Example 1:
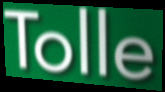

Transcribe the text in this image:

Tolle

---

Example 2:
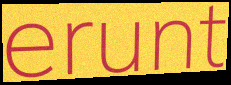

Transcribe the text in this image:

erunt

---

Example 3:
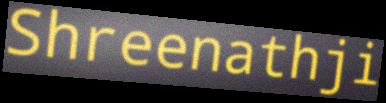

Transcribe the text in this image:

Shreenathji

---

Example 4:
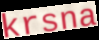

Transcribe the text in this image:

krsna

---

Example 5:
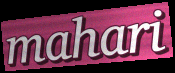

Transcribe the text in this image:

mahari